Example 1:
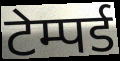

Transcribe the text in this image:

टेम्पर्ड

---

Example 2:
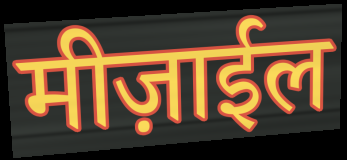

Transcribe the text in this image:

मीज़ाईल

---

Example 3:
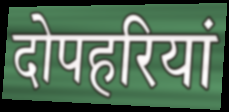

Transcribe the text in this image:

दोपहरियां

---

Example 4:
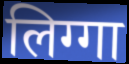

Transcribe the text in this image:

लिग्गा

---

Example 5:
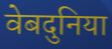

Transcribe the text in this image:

वेबदुनिया